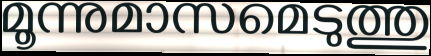
മൂന്നുമാസമെടുത്തു